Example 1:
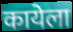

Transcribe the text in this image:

कायेला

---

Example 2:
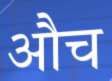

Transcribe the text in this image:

औच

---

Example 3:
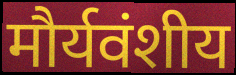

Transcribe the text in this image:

मौर्यवंशीय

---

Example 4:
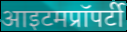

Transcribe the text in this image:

आइटमप्रॉपर्टी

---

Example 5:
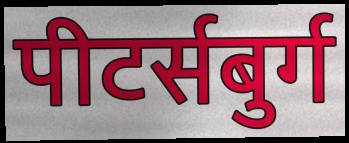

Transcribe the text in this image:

पीटर्सबुर्ग